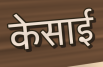
केसाई